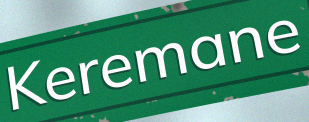
Keremane